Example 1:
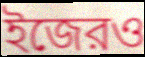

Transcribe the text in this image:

ইজেরও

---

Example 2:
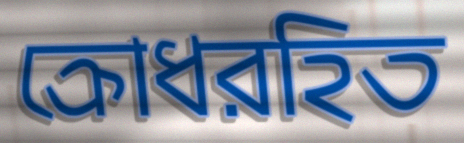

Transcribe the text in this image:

ক্রোধরহিত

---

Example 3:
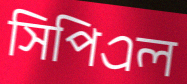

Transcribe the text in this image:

সিপিএল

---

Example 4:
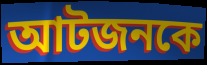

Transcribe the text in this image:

আটজনকে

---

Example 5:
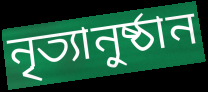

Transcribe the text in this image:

নৃত্যানুষ্ঠান